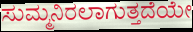
ಸುಮ್ಮನಿರಲಾಗುತ್ತದೆಯೇ